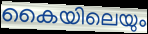
കൈയിലെയും